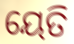
ୟେତି